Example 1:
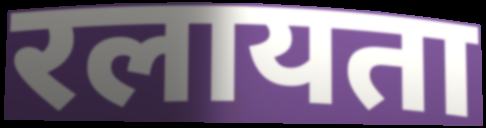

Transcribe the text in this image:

रलायता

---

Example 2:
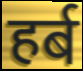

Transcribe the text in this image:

हर्ब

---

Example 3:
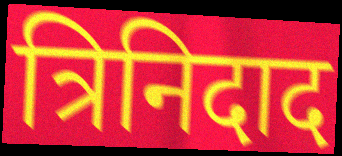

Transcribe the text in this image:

त्रिनिदाद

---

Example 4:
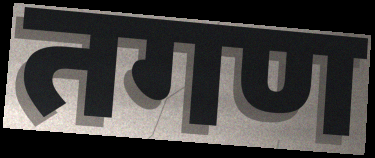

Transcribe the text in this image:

तगण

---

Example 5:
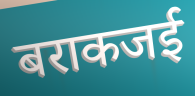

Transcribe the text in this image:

बराकजई